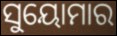
ସୁୟୋମାର